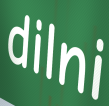
dilni